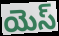
యెస్